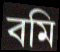
বমি